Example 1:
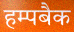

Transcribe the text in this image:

हम्पबैक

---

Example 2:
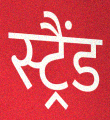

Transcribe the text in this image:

स्ट्रैंड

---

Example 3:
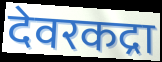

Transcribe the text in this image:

देवरकद्रा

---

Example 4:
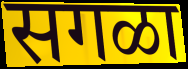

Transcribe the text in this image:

सगळा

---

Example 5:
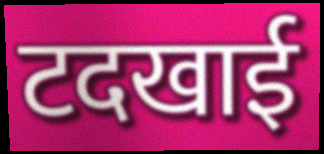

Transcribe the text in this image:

टदखाई